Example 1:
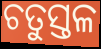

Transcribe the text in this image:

ଚତୁସ୍ତଳ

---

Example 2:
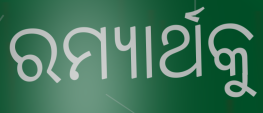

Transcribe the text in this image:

ରମ୍ୟାର୍ଥକୁ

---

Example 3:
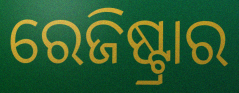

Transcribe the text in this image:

ରେଜିଷ୍ଟ୍ରାର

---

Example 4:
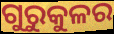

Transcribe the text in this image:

ଗୁରୁକୁଳର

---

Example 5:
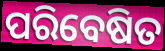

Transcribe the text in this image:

ପରିବେଷିତ